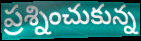
ప్రశ్నించుకున్న